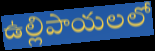
ఉల్లిపాయలలో